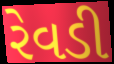
રેવડી